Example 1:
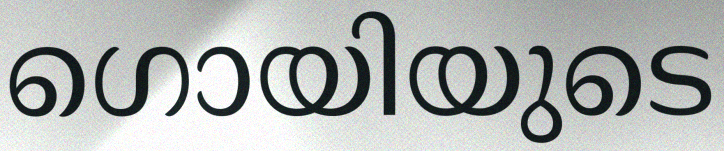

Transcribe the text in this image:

ഗൊയിയുടെ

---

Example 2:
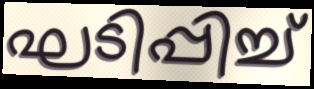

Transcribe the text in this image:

ഘടിപ്പിച്ച്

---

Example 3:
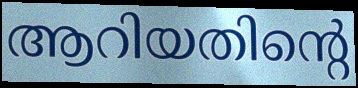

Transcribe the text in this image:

ആറിയതിന്റെ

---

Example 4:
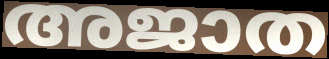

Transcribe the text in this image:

അജാത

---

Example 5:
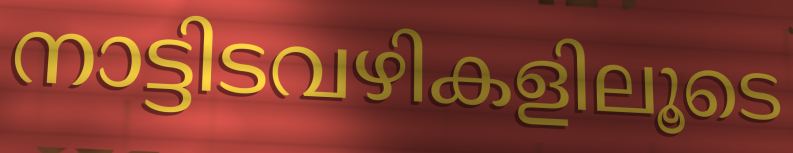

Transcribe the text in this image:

നാട്ടിടവഴികളിലൂടെ